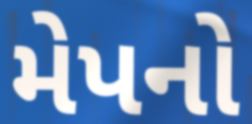
મેપનો